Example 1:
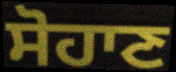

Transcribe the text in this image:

ਸੋਹਾਣ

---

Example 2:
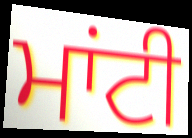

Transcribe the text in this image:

ਮਾਂਟੀ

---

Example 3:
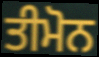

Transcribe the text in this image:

ਤੀਮੋਨ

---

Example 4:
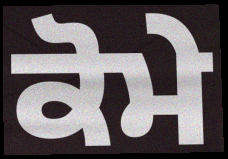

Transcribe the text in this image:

ਕੋਮੇ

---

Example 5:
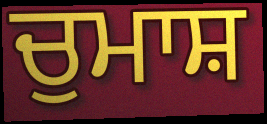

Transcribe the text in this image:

ਚੁਮਾਸ਼